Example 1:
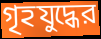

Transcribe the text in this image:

গৃহযুদ্ধের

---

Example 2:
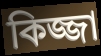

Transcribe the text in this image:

কিজ্জা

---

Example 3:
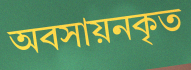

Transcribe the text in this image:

অবসায়নকৃত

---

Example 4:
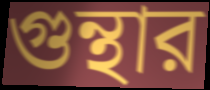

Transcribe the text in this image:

গুন্থার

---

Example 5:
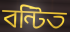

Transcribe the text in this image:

বন্টিত